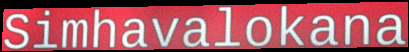
Simhavalokana